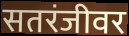
सतरंजीवर